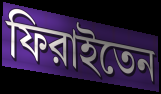
ফিরাইতেন